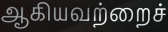
ஆகியவற்றைச்